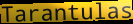
Tarantulas